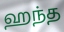
ஹந்த